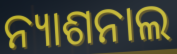
ନ୍ୟାଶନାଲ